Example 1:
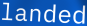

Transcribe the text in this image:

landed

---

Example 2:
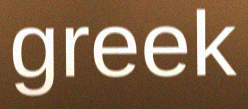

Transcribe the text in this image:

greek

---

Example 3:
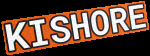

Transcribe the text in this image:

KISHORE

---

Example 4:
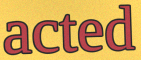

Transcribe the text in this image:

acted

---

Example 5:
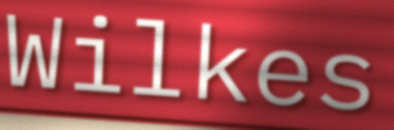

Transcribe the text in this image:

Wilkes